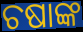
ଚଷାଙ୍କ